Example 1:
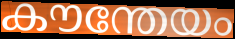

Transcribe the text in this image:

കൗന്തേയം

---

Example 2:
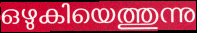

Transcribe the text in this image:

ഒഴുകിയെത്തുന്നു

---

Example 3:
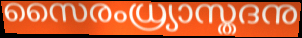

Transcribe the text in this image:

സൈരംധ്ര്യാസ്തദനു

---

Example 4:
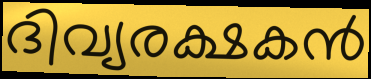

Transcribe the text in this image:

ദിവ്യരക്ഷകൻ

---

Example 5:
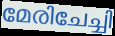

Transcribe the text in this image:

മേരിചേച്ചി